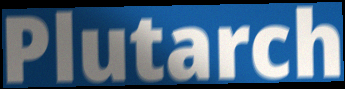
Plutarch